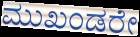
ಮುಖಂಡರೇ